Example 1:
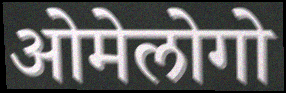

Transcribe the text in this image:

ओमेलोगो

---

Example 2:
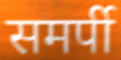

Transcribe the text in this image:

समर्पी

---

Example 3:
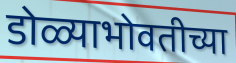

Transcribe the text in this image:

डोळ्याभोवतीच्या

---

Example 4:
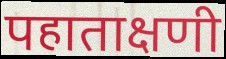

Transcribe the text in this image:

पहाताक्षणी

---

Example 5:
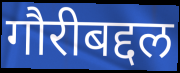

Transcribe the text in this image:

गौरीबद्दल